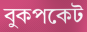
বুকপকেট